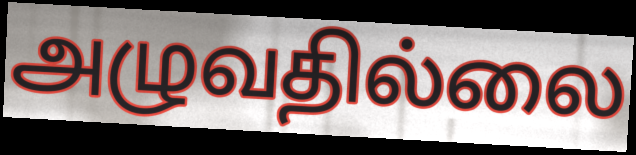
அழுவதில்லை